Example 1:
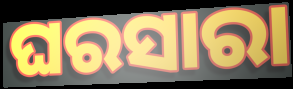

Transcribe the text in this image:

ଘରସାରା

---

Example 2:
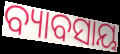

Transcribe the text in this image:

ବ୍ୟାବସାୟ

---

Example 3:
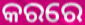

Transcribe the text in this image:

କରରେ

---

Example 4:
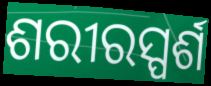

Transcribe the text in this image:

ଶରୀରସ୍ପର୍ଶ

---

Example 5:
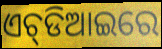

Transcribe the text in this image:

ଏଚ୍‌ଡିଆଇରେ